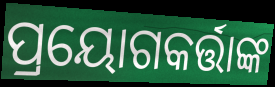
ପ୍ରୟୋଗକର୍ତ୍ତାଙ୍କ